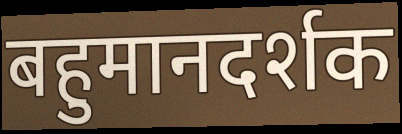
बहुमानदर्शक